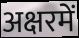
अक्षरमें